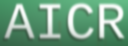
AICR